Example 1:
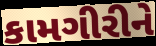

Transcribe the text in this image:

કામગીરીને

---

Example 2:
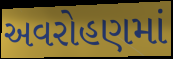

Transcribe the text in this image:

અવરોહણમાં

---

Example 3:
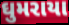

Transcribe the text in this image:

ઘુમરાયા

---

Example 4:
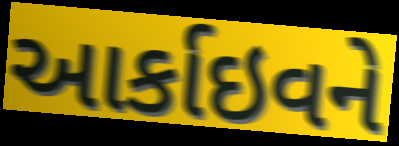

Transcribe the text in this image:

આર્કાઇવને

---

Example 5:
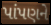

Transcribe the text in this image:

પાંપણને